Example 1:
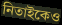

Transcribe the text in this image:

নিতাইকেও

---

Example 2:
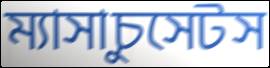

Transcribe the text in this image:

ম্যাসাচুসেটস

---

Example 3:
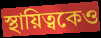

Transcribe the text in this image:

স্থায়িত্বকেও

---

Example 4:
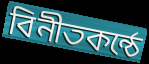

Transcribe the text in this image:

বিনীতকন্ঠে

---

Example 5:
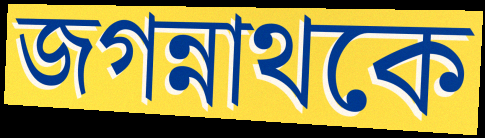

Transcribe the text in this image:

জগন্নাথকে